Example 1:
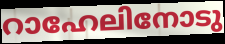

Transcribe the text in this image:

റാഹേലിനോടു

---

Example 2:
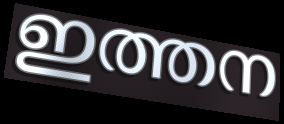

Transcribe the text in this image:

ഇത്തന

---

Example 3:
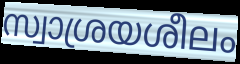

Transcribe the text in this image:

സ്വാശ്രയശീലം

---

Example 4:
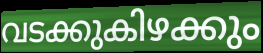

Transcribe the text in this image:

വടക്കുകിഴക്കും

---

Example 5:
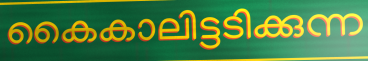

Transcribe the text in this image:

കൈകാലിട്ടടിക്കുന്ന